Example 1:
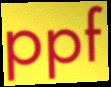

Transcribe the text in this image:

ppf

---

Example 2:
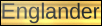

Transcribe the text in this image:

Englander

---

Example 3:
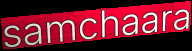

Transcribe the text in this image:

samchaara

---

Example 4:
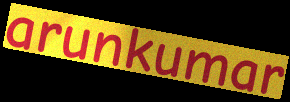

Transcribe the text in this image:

arunkumar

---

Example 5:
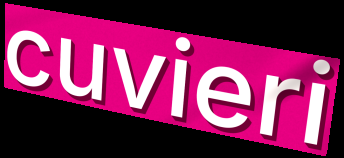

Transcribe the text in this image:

cuvieri